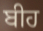
ਬੀਹ